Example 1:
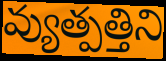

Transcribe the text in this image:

వ్యుత్పత్తిని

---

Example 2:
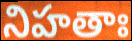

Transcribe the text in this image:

నిహతాః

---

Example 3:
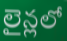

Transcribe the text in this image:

లైన్లలో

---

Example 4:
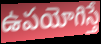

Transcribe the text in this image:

ఉపయోగిస్తే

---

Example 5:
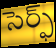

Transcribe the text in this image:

సెర్ఫ్